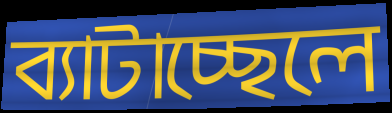
ব্যাটাচ্ছেলে